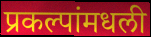
प्रकल्पांमधली